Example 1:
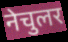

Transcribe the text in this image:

नेचुलर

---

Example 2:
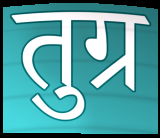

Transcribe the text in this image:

तुग्र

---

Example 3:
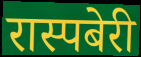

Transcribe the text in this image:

रास्पबेरी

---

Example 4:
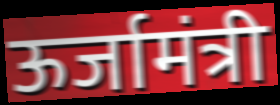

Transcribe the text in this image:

ऊर्जामंत्री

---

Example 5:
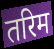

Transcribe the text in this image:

तरिम